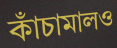
কাঁচামালও